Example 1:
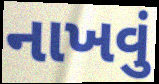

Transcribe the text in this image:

નાખવું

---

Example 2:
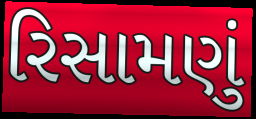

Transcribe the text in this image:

રિસામણું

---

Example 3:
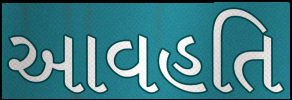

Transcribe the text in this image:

આવહતિ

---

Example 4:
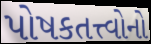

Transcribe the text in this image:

પોષકતત્ત્વોનો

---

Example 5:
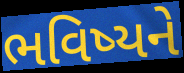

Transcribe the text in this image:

ભવિષ્યને